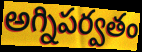
అగ్నిపర్వతం